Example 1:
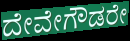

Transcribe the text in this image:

ದೇವೇಗೌಡರೇ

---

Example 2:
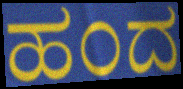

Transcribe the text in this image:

ಹಂದ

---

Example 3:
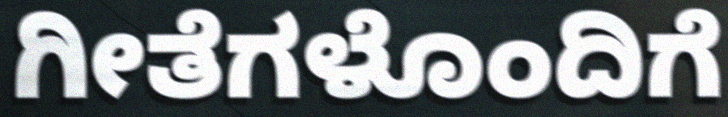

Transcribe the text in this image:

ಗೀತೆಗಳೊಂದಿಗೆ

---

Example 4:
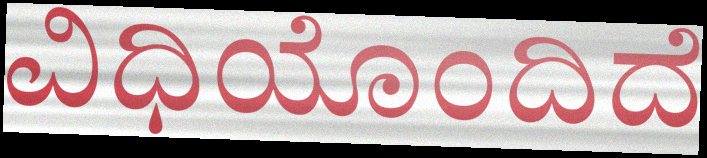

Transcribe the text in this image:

ವಿಧಿಯೊಂದಿದೆ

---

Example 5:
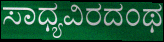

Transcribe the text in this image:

ಸಾಧ್ಯವಿರದಂಥ